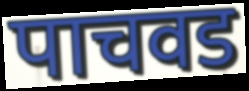
पाचवड